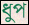
ধুপ